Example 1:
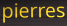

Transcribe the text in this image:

pierres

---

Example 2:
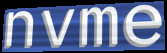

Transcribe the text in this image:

nvme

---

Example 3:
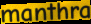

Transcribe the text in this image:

manthra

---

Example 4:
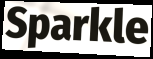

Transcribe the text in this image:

Sparkle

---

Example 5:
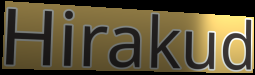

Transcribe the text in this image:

Hirakud